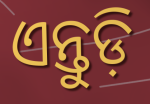
ଏନ୍ତୁଡ଼ି